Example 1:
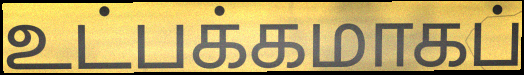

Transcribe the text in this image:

உட்பக்கமாகப்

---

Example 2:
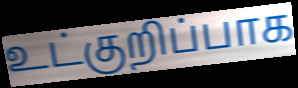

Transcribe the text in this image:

உட்குறிப்பாக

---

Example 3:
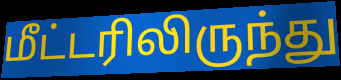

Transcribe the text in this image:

மீட்டரிலிருந்து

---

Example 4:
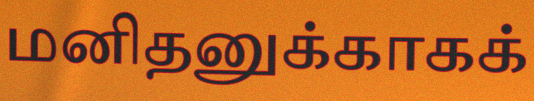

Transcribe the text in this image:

மனிதனுக்காகக்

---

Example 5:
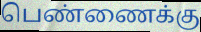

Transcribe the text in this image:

பெண்ணைக்கு